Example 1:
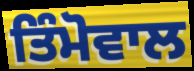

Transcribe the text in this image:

ਤਿੰਮੋਵਾਲ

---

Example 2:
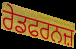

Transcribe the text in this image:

ਰੇਡਫਰਨਜ਼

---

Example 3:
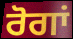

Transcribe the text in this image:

ਰੋਗਾਂ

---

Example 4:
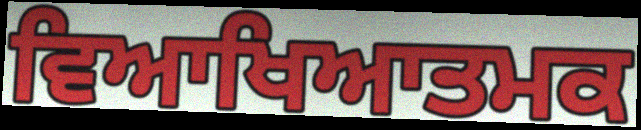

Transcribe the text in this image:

ਵਿਆਖਿਆਤਮਕ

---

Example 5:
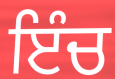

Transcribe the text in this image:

ਇੰਚ